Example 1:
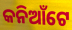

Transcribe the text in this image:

କନିଆଁଟେ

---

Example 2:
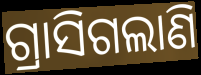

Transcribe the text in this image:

ଗ୍ରାସିଗଲାଣି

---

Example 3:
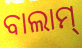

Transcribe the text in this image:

ବାଲାମ୍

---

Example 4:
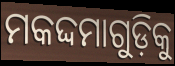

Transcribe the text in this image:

ମକଦ୍ଦମାଗୁଡ଼ିକୁ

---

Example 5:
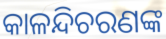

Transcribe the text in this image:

କାଳନ୍ଦିଚରଣଙ୍କ